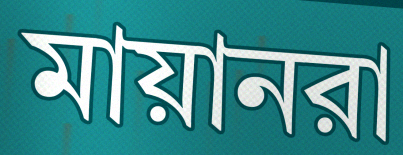
মায়ানরা